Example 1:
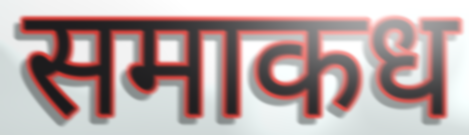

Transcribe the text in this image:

समाकध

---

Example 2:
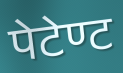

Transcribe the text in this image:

पेटेण्ट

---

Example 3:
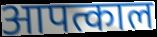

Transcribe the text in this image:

आपत्काल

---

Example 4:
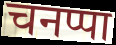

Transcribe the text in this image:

चनप्पा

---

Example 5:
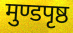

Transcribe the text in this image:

मुण्डपृष्ठ